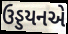
ઉડ્ડયનએ